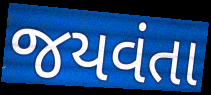
જયવંતા